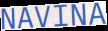
NAVINA